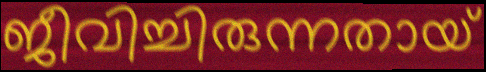
ജീവിച്ചിരുന്നതായ്